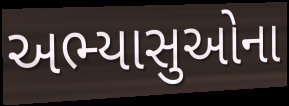
અભ્યાસુઓના